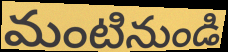
మంటినుండి